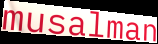
musalman